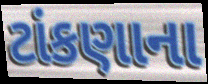
ટાંકણાના